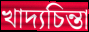
খাদ্যচিন্তা